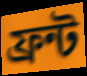
ফ্ৰন্ট